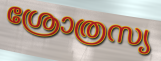
ശ്രോത്രസ്യ